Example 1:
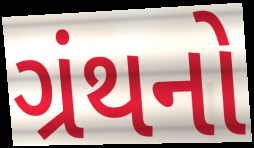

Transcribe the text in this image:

ગ્રંથનો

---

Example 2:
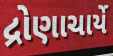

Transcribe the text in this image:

દ્રોણાચાર્યે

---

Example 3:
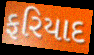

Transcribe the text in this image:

ફરિયાદ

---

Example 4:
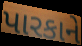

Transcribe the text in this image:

પારકાને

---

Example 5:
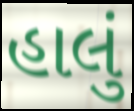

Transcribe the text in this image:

હાલું